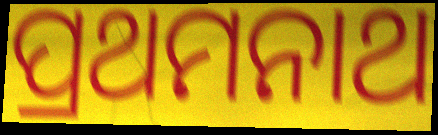
ପ୍ରଥମନାଥ